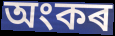
অংকৰ